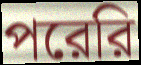
পরেরি